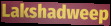
Lakshadweep